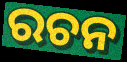
ରଚନ